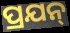
ପ୍ରଯନ୍